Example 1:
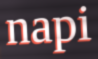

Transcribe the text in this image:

napi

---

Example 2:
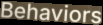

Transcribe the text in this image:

Behaviors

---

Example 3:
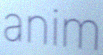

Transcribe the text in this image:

anim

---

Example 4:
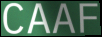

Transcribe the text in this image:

CAAF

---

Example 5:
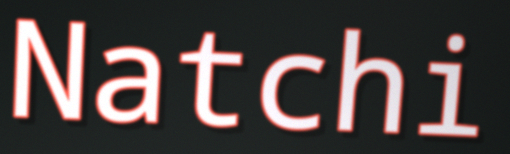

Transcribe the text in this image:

Natchi